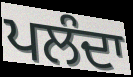
ਪਲੰਦਾ